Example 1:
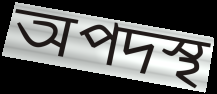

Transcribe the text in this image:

অপদস্থ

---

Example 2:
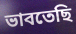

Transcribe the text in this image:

ভাবতেছি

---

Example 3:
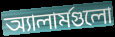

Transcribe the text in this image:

অ্যালার্মগুলো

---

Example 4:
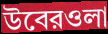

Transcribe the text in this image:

উবেরওলা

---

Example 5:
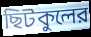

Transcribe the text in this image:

ছিটকুলের